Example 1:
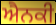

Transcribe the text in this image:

ਐਨਕੀ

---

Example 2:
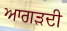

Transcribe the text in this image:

ਆਗੜਦੀ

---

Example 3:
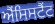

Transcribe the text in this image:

ਐਂਸਿਸਟੈਂਟ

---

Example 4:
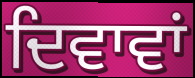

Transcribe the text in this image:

ਦਿਵਾਵਾਂ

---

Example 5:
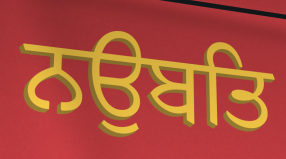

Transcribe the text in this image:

ਨਉਬਤਿ